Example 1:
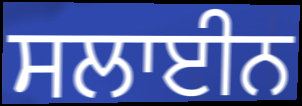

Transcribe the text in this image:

ਸਲਾਈਨ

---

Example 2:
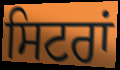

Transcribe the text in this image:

ਸਿਟਰਾਂ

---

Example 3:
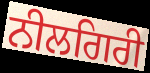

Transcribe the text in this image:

ਨੀਲਗਿਰੀ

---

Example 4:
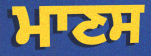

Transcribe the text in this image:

ਮਾਣਸ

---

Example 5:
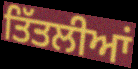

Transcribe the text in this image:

ਤਿੱਤਲੀਆਂ